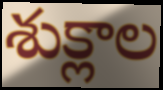
శుక్లాల